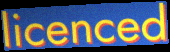
licenced